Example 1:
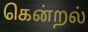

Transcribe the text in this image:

கென்றல்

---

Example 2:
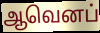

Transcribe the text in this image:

ஆவெனப்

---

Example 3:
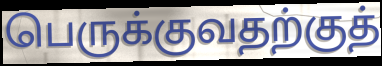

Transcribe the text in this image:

பெருக்குவதற்குத்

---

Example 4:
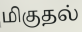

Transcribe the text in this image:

மிகுதல்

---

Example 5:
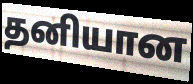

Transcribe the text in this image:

தனியான